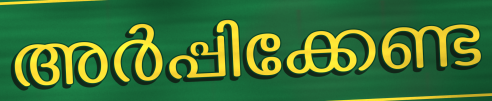
അർപ്പിക്കേണ്ട